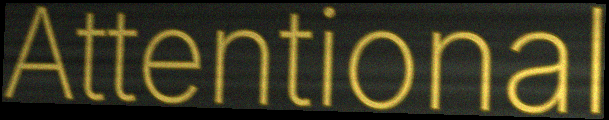
Attentional